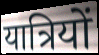
यात्रियों